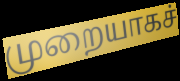
முறையாகச்